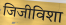
जिजीविशा